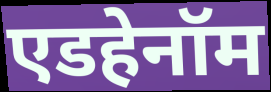
एडहेनॉम